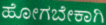
ಹೋಗಬೇಕಾಗಿ